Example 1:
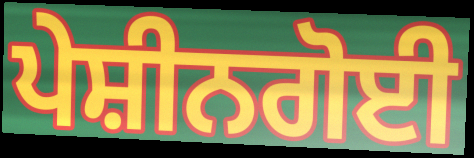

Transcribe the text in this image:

ਪੇਸ਼ੀਨਗੋਈ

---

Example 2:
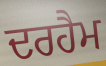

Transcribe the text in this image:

ਦਰਹੈਮ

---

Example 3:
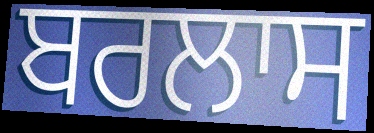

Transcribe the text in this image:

ਬਰਲਾਸ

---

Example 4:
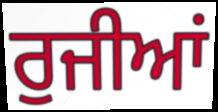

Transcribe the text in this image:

ਰੁਜੀਆਂ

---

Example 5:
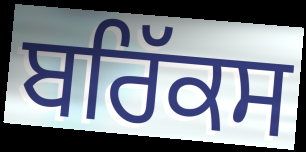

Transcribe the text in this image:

ਬਰਿੱਕਸ